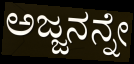
ಅಜ್ಜನನ್ನೇ